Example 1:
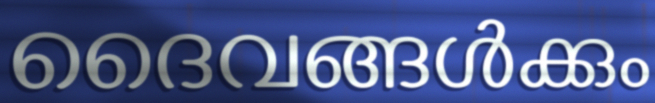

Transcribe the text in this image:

ദൈവങ്ങൾക്കും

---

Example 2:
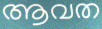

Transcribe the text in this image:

ആവത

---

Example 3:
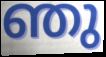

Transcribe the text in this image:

ഞു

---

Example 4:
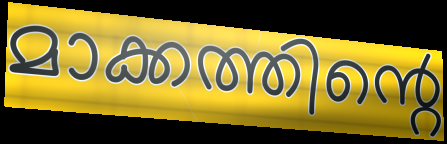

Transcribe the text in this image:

മാക്കത്തിന്റെ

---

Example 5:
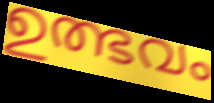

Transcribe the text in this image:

ഉത്ഭവം